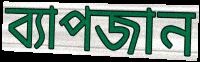
ব্যাপজান